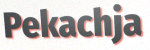
Pekachja